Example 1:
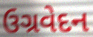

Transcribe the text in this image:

ઉગ્રવેદન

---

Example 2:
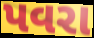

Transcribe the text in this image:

પવરા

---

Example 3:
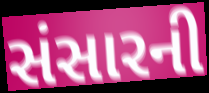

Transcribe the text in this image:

સંસારની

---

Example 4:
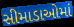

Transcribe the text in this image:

સીમાડાઓમાં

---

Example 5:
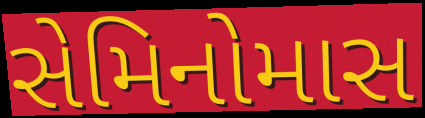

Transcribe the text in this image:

સેમિનોમાસ